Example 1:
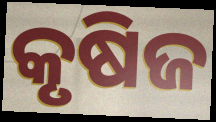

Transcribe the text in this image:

କୃଷିଜ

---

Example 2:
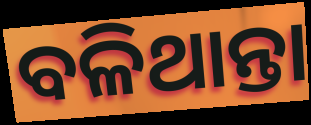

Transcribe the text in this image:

ବଳିଥାନ୍ତା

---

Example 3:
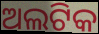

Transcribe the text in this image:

ଅଲଟିକ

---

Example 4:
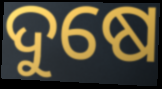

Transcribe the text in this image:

ଦୁଷେ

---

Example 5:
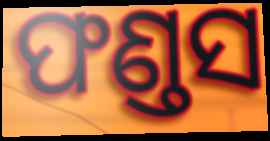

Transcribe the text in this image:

ଫଣ୍ଡସ